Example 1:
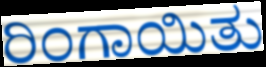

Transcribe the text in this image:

ರಿಂಗಾಯಿತು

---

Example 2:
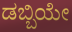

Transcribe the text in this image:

ಡಬ್ಬಿಯೇ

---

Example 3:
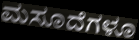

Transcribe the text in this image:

ಮಸೂದೆಗಳೂ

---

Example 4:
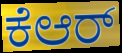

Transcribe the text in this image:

ಕೆಆರ್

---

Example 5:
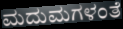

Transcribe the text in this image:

ಮದುಮಗಳಂತೆ